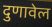
दुणावेल